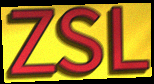
ZSL